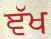
ਞੱਖ